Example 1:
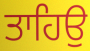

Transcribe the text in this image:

ਤਾਹਿਉ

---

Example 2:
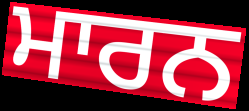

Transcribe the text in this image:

ਮਾਰਨ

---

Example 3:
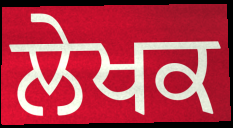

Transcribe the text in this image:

ਲੇਖਕ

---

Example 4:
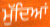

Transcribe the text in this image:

ਮੁੱਦਿਆਂ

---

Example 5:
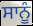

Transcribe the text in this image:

ਸਾਨੂੰ